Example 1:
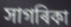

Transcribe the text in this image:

সাগৰিকা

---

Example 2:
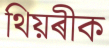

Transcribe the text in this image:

থিয়ৰীক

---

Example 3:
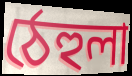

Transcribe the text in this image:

ঠেহুলা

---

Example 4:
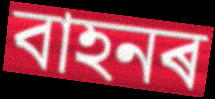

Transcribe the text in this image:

বাহনৰ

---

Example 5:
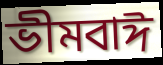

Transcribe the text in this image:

ভীমবাঈ